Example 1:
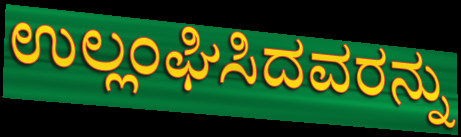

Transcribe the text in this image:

ಉಲ್ಲಂಘಿಸಿದವರನ್ನು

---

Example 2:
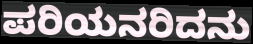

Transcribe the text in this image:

ಪರಿಯನರಿದನು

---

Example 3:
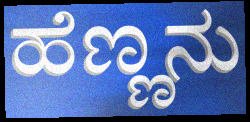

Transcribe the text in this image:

ಹೆಣ್ಣನು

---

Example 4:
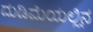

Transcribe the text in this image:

ದುಡಿಮೆಯಲ್ಲಿನ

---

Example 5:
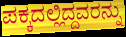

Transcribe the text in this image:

ಪಕ್ಕದಲ್ಲಿದ್ದವರನ್ನು